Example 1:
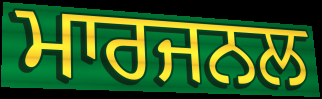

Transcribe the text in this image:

ਮਾਰਜਨਲ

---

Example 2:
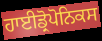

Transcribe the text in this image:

ਹਾਈਡ੍ਰੋਪੋਨਿਕਸ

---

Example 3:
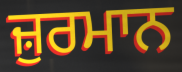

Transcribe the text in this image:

ਜ਼ੁਰਮਾਨ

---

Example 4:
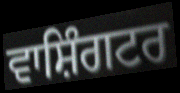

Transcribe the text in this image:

ਵਾਸ਼ਿੰਗਟਰ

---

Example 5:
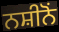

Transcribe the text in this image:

ਨਸ਼ੀਨੋਂ